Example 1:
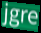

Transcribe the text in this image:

jgre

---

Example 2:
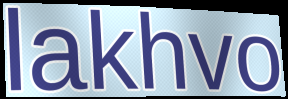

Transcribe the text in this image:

lakhvo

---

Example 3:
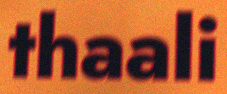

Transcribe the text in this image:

thaali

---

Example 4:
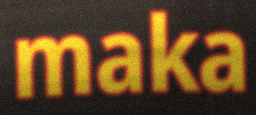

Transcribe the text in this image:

maka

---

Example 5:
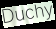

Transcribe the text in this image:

Duchy